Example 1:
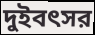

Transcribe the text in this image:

দুইবৎসর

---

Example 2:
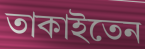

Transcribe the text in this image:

তাকাইতেন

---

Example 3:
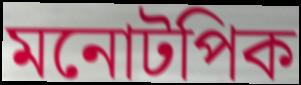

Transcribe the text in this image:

মনোটপিক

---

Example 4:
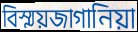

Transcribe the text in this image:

বিস্ময়জাগানিয়া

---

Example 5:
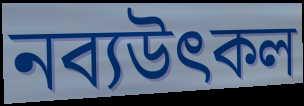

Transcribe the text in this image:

নব্যউৎকল